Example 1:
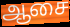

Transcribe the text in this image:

ஆசை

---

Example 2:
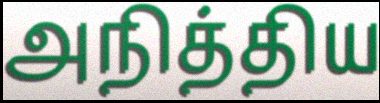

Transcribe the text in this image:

அநித்திய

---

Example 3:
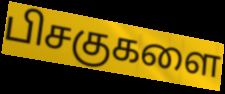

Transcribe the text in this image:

பிசகுகளை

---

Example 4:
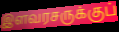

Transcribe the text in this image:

இளவரசருக்குப்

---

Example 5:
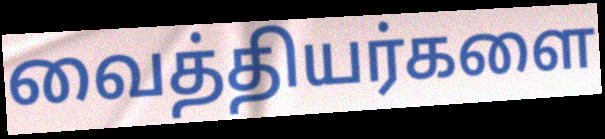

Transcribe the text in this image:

வைத்தியர்களை